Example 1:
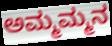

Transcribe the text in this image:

ಅಮ್ಮಮ್ಮನ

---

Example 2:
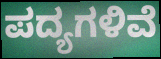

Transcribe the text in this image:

ಪದ್ಯಗಳಿವೆ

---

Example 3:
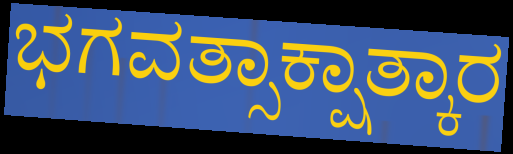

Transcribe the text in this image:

ಭಗವತ್ಸಾಕ್ಷಾತ್ಕಾರ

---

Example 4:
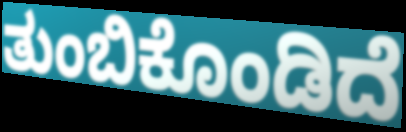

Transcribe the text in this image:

ತುಂಬಿಕೊಂಡಿದೆ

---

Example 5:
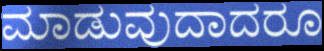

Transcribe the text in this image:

ಮಾಡುವುದಾದರೂ